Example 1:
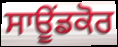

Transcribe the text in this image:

ਸਾਊਂਡਕੋਰ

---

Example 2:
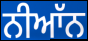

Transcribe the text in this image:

ਨੀਆੱਨ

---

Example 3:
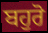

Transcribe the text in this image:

ਬਹੁਰੋ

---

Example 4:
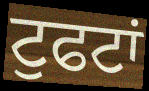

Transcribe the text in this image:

ਟੁਫਟਾਂ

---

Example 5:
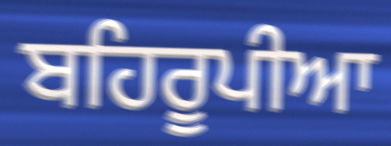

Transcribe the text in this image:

ਬਹਿਰੂਪੀਆ